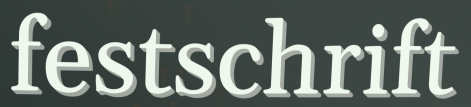
festschrift